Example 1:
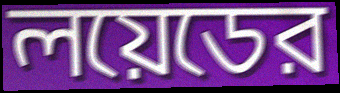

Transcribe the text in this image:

লয়েডের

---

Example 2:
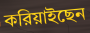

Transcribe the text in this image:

করিয়াইছেন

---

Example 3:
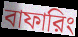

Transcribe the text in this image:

বাফারিং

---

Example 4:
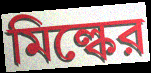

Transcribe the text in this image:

মিল্কের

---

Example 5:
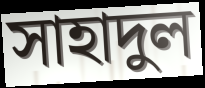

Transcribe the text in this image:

সাহাদুল